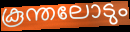
കൂന്തലോടും